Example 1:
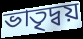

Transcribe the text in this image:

ভাতৃদ্বয়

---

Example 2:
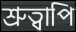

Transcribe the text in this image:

শ্রুত্বাপি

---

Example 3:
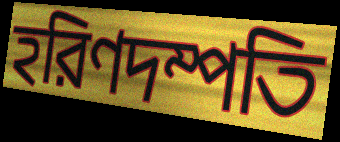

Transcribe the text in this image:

হরিণদম্পতি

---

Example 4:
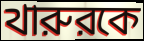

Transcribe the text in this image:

থারুরকে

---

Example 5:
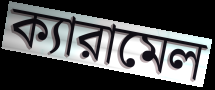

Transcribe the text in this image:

ক্যারামেল